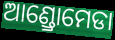
ଆଣ୍ଡ୍ରୋମେଡା